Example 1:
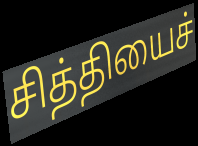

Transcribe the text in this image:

சித்தியைச்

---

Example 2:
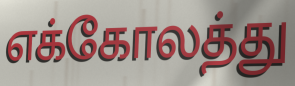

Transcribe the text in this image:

எக்கோலத்து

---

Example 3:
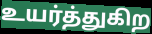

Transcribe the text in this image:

உயர்த்துகிற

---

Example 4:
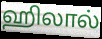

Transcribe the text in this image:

ஹிலால்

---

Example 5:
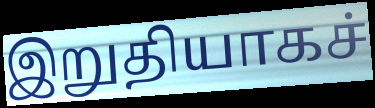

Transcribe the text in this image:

இறுதியாகச்